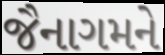
જૈનાગમને